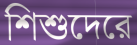
শিশুদেরে